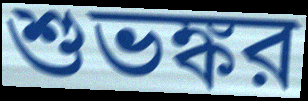
শুভঙ্কর